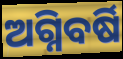
ଅଗ୍ନିବର୍ଷି